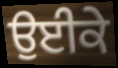
ਉਈਕੇ